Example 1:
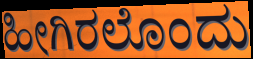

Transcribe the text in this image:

ಹೀಗಿರಲೊಂದು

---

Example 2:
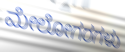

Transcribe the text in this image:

ಮೇಲೋಗರಗಳು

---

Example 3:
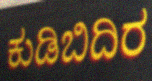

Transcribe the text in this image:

ಕುಡಿಬಿದಿರ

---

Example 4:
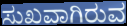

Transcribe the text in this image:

ಸುಖವಾಗಿರುವ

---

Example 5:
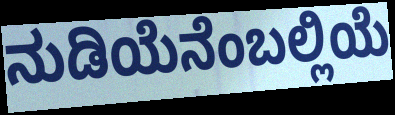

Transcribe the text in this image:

ನುಡಿಯೆನೆಂಬಲ್ಲಿಯೆ